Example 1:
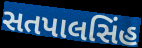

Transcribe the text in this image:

સતપાલસિંહ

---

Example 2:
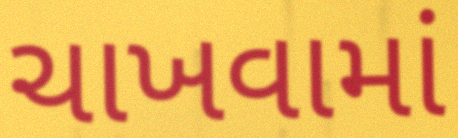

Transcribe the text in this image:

ચાખવામાં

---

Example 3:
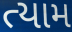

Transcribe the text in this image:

ત્યામ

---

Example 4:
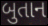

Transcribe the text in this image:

બુતાન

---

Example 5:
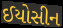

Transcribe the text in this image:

ઈયોસીન